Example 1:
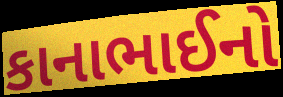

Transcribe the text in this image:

કાનાભાઈનો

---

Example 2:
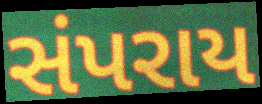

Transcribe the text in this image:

સંપરાય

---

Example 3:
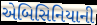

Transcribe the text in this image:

એબિસિનિયાની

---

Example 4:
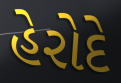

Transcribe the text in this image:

હેરોદે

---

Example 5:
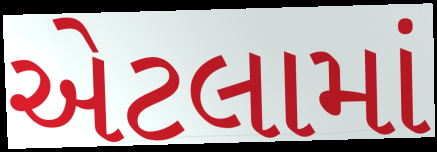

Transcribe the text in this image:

એટલામાં